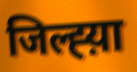
जिल्ह्य़ा